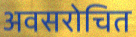
अवसरोचित